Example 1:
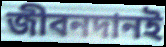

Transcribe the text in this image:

জীবনদানই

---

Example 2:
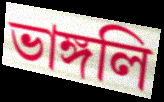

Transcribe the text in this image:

ভাঙ্গলি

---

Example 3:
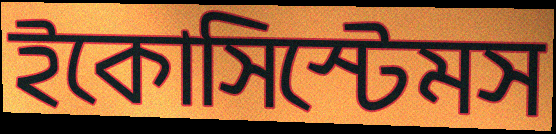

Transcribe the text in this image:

ইকোসিস্টেমস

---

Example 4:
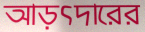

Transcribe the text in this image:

আড়ৎদারের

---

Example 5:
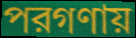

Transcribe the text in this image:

পরগণায়